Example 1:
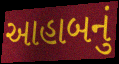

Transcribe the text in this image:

આહાબનું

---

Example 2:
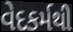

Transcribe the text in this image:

વેદકર્મથી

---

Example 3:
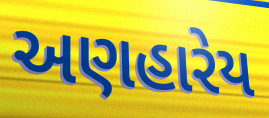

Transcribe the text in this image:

અણહારેય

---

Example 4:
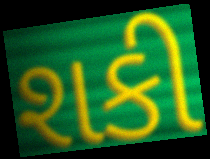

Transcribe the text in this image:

શકી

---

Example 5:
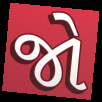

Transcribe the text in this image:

જો